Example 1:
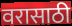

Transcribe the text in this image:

वरासाठी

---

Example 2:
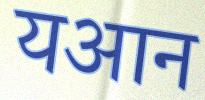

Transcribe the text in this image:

यआन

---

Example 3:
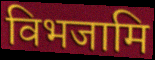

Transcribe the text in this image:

विभजामि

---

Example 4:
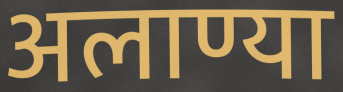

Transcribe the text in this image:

अलाण्या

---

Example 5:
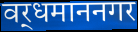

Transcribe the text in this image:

वर्धमाननगर